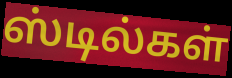
ஸ்டில்கள்